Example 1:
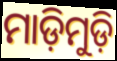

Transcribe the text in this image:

ମାଡ଼ିମୁଡ଼ି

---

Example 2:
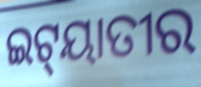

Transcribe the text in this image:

ଇଟ୍‍ୟାତୀର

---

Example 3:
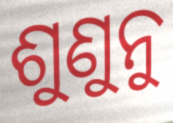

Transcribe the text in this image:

ଶୁଣୁନୁ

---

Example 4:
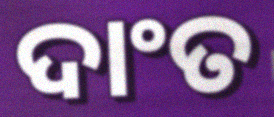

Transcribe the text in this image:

ଦାଂତ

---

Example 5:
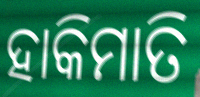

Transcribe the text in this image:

ହାକିମାତି